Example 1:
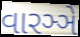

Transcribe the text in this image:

વારઞ્ઞે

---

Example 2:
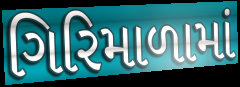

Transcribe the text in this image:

ગિરિમાળામાં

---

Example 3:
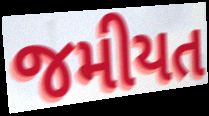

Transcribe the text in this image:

જમીયત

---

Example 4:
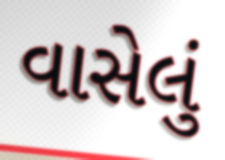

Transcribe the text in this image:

વાસેલું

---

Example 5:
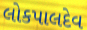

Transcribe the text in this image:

લોકપાલદેવ